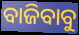
ବାଜିବାବୁ